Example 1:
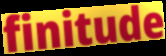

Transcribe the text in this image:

finitude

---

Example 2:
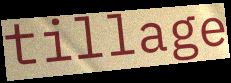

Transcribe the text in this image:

tillage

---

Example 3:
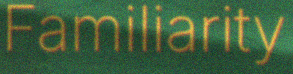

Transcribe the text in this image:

Familiarity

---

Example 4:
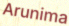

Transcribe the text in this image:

Arunima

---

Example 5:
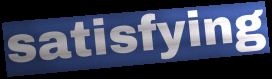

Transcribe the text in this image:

satisfying